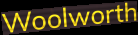
Woolworth